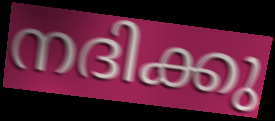
നദിക്കു